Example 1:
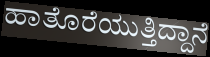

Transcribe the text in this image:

ಹಾತೊರೆಯುತ್ತಿದ್ದಾನೆ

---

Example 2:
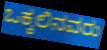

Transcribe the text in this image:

ಒಕ್ಕಲಿನವರು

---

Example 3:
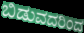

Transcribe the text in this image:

ಬಿಡುವದರಿಂದ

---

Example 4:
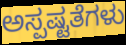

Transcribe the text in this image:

ಅಸ್ಪಷ್ಟತೆಗಳು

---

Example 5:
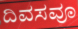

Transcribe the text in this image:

ದಿವಸವೂ